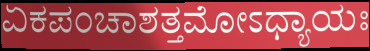
ಏಕಪಂಚಾಶತ್ತಮೋಽಧ್ಯಾಯಃ